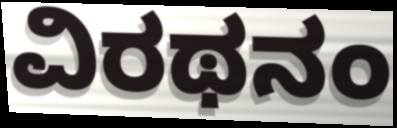
ವಿರಥನಂ